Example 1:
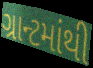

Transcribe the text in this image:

ગ્રાન્ટમાંથી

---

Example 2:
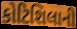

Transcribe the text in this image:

કોટિશિલાની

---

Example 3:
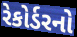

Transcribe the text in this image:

રેકોર્ડરનો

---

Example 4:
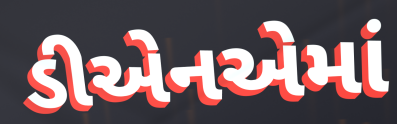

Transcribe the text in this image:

ડીએનએમાં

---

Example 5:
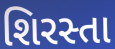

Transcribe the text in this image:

શિરસ્તા